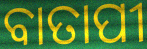
ବାତାପୀ